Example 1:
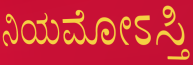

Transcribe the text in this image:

ನಿಯಮೋಽಸ್ತಿ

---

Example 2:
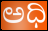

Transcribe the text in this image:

ಅಧಿ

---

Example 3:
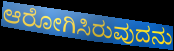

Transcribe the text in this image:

ಆರೋಗಿಸಿರುವುದನು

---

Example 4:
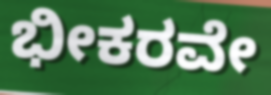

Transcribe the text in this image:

ಭೀಕರವೇ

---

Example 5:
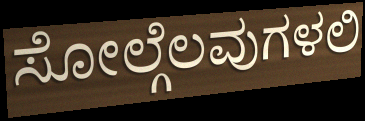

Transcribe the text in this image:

ಸೋಲ್ಗೆಲವುಗಳಲಿ